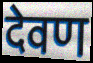
देवण